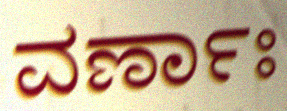
ವರ್ಣಾಃ